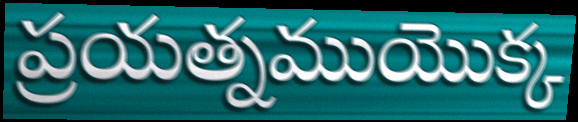
ప్రయత్నముయొక్క